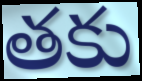
తకు